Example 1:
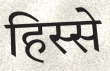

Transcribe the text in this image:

हिस्‍से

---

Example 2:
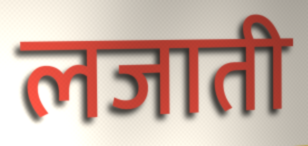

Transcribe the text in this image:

लजाती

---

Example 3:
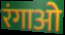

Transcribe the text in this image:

रंगाओ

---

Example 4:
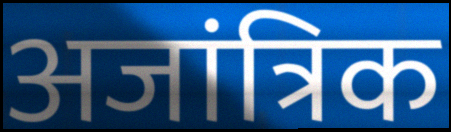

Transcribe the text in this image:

अजांत्रिक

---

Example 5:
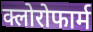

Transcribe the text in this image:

क्लोरोफार्म